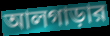
আলগাড়ার